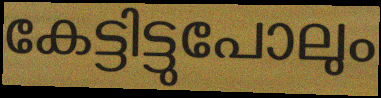
കേട്ടിട്ടുപോലും